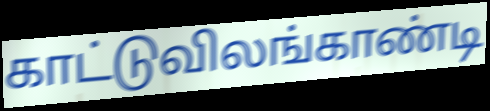
காட்டுவிலங்காண்டி